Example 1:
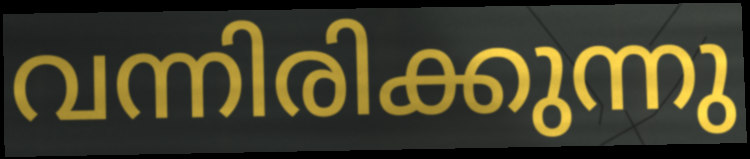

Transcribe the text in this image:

വന്നിരിക്കുന്നു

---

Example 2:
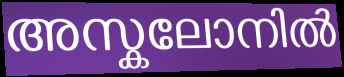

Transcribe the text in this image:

അസ്കലോനിൽ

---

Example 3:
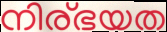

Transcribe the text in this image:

നിര്ഭയത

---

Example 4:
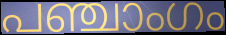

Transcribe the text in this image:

പഞ്ചാംഗം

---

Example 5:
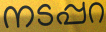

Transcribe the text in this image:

നടപ്പറ